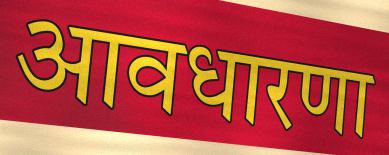
आवधारणा